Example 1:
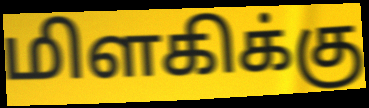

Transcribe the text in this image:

மிளகிக்கு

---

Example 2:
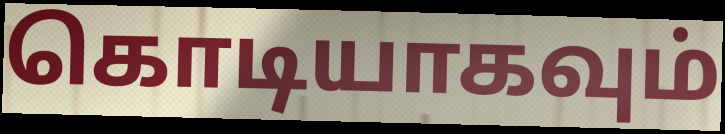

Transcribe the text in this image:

கொடியாகவும்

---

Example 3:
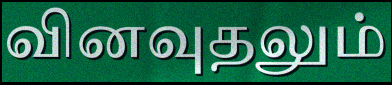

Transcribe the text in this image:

வினவுதலும்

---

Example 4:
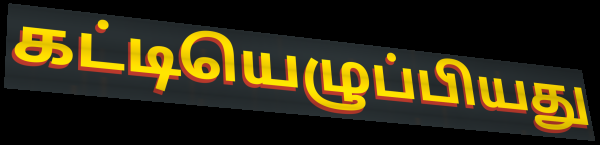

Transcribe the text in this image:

கட்டியெழுப்பியது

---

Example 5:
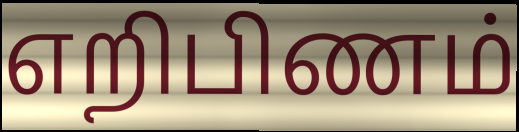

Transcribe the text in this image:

எறிபிணம்